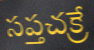
సప్తచక్రే